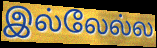
இல்லேல்ல